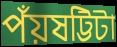
পঁয়ষট্টিটা